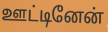
ஊட்டினேன்